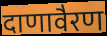
दाणावैरण